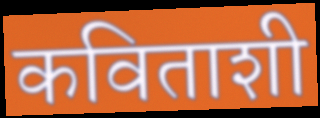
कविताशी